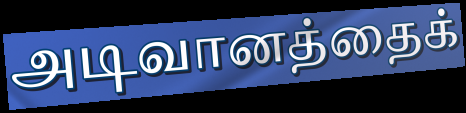
அடிவானத்தைக்